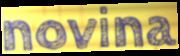
novina